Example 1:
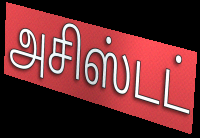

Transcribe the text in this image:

அசிஸ்டட்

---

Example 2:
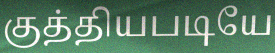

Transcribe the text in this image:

குத்தியபடியே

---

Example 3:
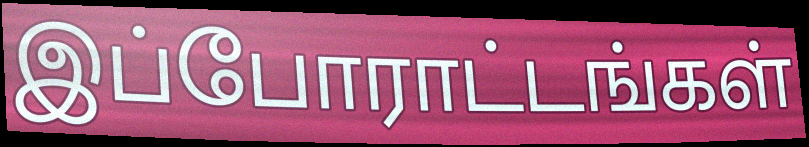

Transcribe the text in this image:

இப்போராட்டங்கள்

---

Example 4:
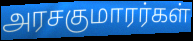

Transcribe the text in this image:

அரசகுமாரர்கள்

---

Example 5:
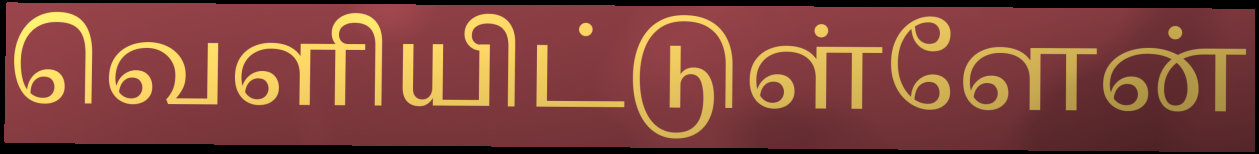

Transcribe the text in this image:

வெளியிட்டுள்ளேன்